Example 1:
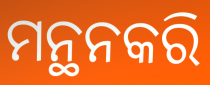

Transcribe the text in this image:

ମନ୍ଥନକରି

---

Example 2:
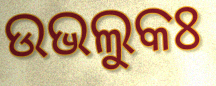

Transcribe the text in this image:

ଉଭଲୁକଃ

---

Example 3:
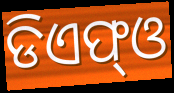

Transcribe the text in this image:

ଡିଏଫ୍ଓ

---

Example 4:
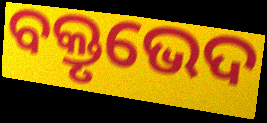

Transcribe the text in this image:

ବକ୍ତୃଭେଦ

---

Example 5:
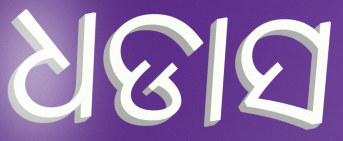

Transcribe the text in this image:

ଧଡାସ